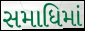
સમાધિમાં